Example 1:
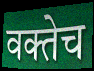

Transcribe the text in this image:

वक्तेच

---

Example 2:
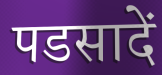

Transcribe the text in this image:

पडसादें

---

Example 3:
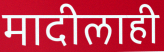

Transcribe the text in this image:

मादीलाही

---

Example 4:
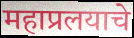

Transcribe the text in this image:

महाप्रलयाचे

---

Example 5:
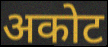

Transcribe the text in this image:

अकोट